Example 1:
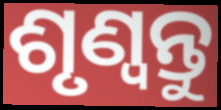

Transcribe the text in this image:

ଶୃଣ୍ଵନ୍ତୁ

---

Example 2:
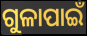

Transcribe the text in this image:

ଗୁଳାପାଇଁ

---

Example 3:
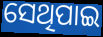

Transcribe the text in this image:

ସେଥିପାଇ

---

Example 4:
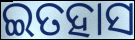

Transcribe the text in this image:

ଇତହାସ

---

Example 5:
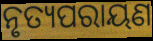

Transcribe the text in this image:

ନୃତ୍ୟପରାୟଣ